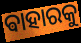
ଵାହାରକୁ